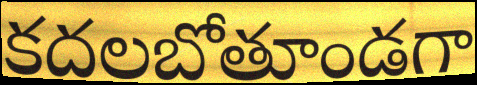
కదలబోతూండగా